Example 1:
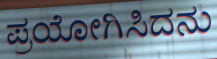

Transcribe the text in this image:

ಪ್ರಯೋಗಿಸಿದನು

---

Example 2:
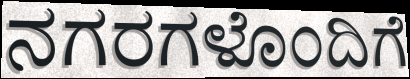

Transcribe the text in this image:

ನಗರಗಳೊಂದಿಗೆ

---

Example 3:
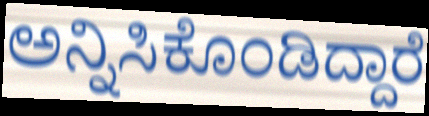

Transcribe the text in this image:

ಅನ್ನಿಸಿಕೊಂಡಿದ್ದಾರೆ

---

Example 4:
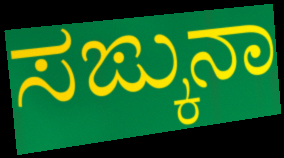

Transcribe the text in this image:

ಸಙ್ಕುನಾ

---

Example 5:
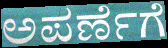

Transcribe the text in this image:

ಅಪರ್ಣೆಗೆ